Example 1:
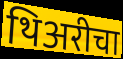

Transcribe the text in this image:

थिअरीचा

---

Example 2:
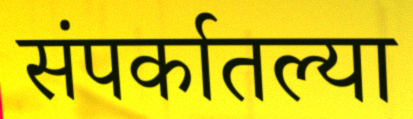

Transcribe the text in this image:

संपर्कातल्या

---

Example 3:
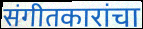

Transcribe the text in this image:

संगीतकारांचा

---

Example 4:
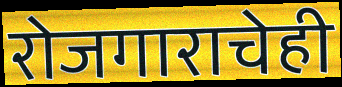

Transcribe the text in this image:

रोजगाराचेही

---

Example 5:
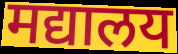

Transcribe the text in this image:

मद्यालय